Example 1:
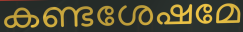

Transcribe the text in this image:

കണ്ടശേഷമേ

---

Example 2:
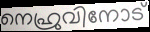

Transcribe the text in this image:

നെഹ്രുവിനോട്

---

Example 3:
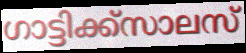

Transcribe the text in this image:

ഗാട്ടിക്ക്സാലസ്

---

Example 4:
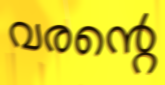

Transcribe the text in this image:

വരന്റെ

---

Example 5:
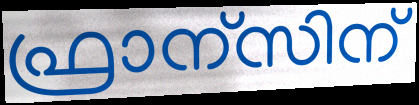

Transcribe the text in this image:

ഫ്രാന്സിന്